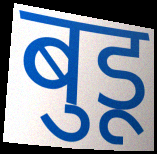
बुडू